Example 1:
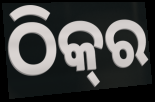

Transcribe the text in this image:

ଠିକ୍‍ର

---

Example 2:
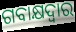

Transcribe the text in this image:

ଗବାକ୍ଷଦ୍ୱାର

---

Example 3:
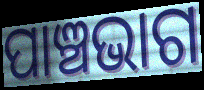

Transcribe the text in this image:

ପାଞ୍ଚଭାଗ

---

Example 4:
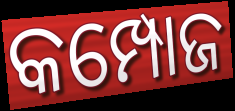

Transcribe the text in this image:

କମ୍ପୋଜ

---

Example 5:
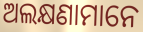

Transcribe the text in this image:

ଅଲକ୍ଷଣାମାନେ